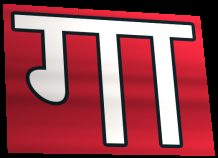
गा